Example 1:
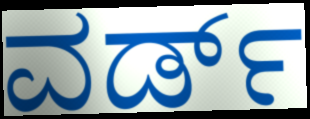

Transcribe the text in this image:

ವರ್ಡ್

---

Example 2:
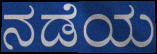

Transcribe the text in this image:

ನಡೆಯ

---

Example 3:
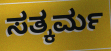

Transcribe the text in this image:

ಸತ್ಕರ್ಮ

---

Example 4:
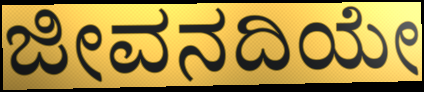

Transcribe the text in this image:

ಜೀವನದಿಯೇ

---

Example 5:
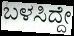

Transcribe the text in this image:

ಬಳಸಿದ್ದೇ